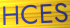
HCES